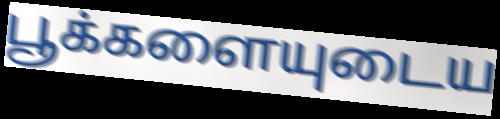
பூக்களையுடைய